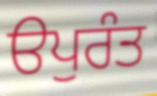
ੳਪੁਰੰਤ